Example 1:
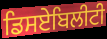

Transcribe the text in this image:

ਡਿਸਏਬਿਲੀਟੀ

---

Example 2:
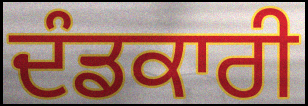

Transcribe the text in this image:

ਦੰਡਕਾਰੀ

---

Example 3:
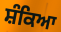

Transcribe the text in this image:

ਸ਼ੰਕਿਆ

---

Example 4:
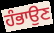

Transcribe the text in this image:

ਹੰਭਾਉਣ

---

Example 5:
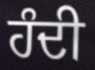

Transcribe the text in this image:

ਹੰਦੀ